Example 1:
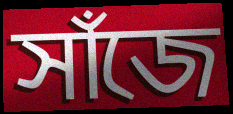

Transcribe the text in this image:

সাঁজে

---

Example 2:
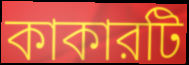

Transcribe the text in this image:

কাকারটি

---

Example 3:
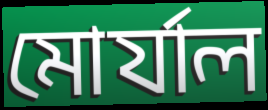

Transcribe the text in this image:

মোর্যাল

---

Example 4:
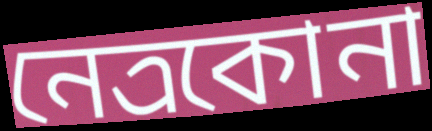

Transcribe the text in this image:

নেত্রকোনা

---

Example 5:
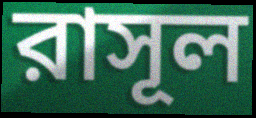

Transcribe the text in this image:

রাসূল